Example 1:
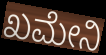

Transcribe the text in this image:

ಖಮೇನಿ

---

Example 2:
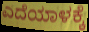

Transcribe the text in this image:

ಎದೆಯಾಳಕ್ಕೆ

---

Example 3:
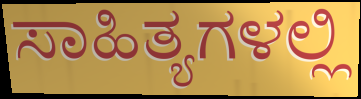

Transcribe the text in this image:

ಸಾಹಿತ್ಯಗಳಲ್ಲಿ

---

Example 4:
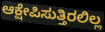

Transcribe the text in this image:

ಆಕ್ಷೇಪಿಸುತ್ತಿರಲಿಲ್ಲ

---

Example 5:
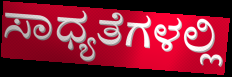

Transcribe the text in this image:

ಸಾಧ್ಯತೆಗಳಲ್ಲಿ